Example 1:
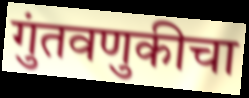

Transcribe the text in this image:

गुंतवणुकीचा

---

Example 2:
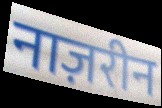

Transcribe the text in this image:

नाज़रीन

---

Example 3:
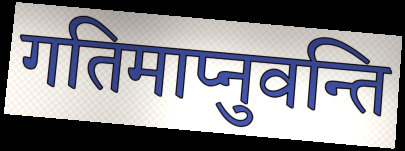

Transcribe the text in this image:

गतिमाप्नुवन्ति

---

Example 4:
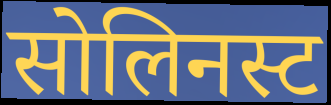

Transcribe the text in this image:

सोलिनस्ट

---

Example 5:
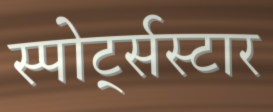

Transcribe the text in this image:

स्पोर्ट्सस्टार